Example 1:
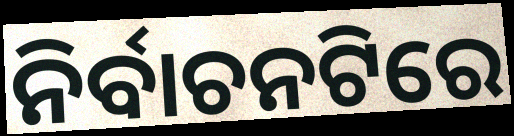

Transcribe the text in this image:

ନିର୍ବାଚନଟିରେ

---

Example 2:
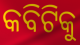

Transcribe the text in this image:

କବିଟିକୁ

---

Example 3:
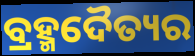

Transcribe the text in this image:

ବ୍ରହ୍ମଦୈତ୍ୟର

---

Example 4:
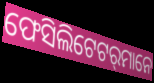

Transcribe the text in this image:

ଫେସିଲିଟେଟର୍‌ମାନେ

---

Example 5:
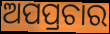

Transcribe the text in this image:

ଅପପ୍ରଚାର